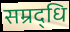
सम्रद्धि